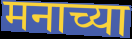
मनाच्या